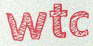
wtc